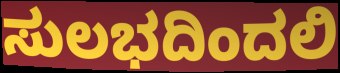
ಸುಲಭದಿಂದಲಿ